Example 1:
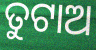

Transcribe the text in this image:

ତୁଟାଅ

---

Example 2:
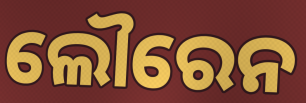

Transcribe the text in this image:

ଲୌରେନ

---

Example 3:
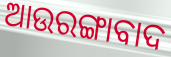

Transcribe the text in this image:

ଆଉରଙ୍ଗାବାଦ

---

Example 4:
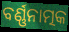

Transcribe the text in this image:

ବର୍ଣ୍ଣନାତ୍ମକ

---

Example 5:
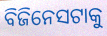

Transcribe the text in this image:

ବିଜିନେସଟାକୁ